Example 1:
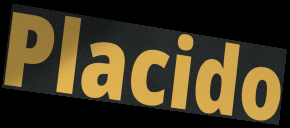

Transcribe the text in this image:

Placido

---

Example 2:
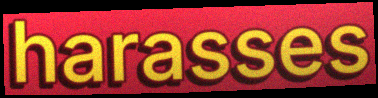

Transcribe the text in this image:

harasses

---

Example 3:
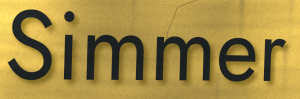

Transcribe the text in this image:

Simmer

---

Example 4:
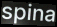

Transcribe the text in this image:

spina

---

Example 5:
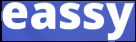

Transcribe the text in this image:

eassy